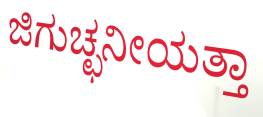
ಜಿಗುಚ್ಛನೀಯತ್ತಾ